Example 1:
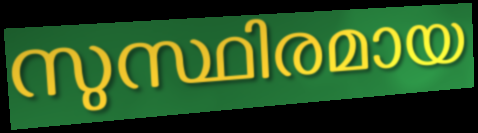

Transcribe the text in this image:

സുസ്ഥിരമായ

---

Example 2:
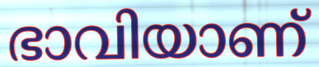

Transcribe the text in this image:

ഭാവിയാണ്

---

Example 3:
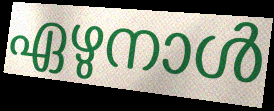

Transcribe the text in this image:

ഏഴുനാൾ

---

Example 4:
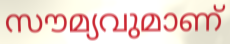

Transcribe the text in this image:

സൗമ്യവുമാണ്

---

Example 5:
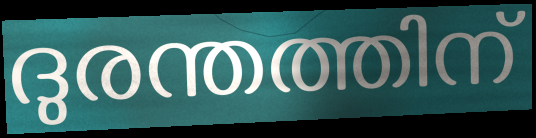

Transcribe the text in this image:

ദുരന്തത്തിന്